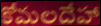
కోమలదేహా